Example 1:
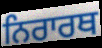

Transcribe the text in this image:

ਨਿਰਾਰਥ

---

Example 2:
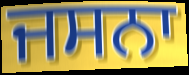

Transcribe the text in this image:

ਜਸਨਾ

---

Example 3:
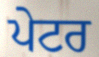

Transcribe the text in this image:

ਪੇਟਰ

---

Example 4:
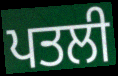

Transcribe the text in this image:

ਪਤਲੀ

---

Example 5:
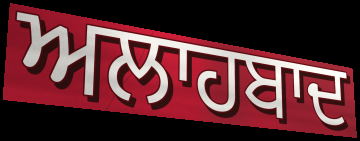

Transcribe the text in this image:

ਅਲਾਹਬਾਦ